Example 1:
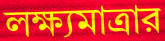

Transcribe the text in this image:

লক্ষ্যমাত্রার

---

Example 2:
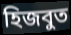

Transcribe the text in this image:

হিজবুত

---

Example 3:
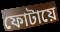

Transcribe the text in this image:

ফোটায়ে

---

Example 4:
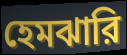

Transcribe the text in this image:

হেমঝারি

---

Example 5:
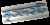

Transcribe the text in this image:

মৃতদেহটি